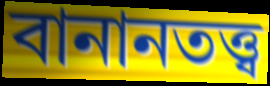
বানানতত্ত্ব